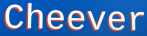
Cheever